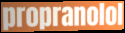
propranolol